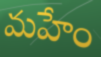
మహేం